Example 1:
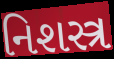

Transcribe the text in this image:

નિશસ્ત્ર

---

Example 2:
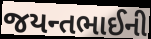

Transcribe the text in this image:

જયન્તભાઈની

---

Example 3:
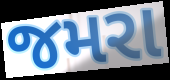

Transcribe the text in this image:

જમરા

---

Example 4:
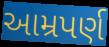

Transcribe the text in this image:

આમ્રપર્ણ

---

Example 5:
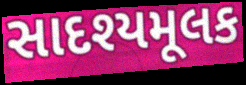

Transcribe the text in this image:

સાદશ્યમૂલક